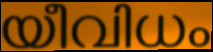
യീവിധം